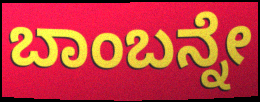
ಬಾಂಬನ್ನೇ